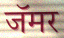
जॅमर